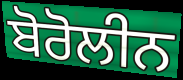
ਬੋਰੋਲੀਨ